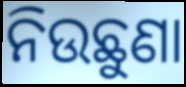
ନିଉଛୁଣା